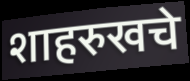
शाहरुखचे